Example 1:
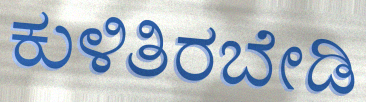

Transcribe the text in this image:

ಕುಳಿತಿರಬೇಡಿ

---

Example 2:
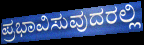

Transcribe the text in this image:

ಪ್ರಭಾವಿಸುವುದರಲ್ಲಿ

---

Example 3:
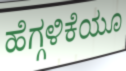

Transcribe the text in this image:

ಹೆಗ್ಗಳಿಕೆಯೂ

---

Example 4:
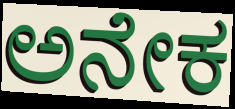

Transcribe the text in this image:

ಅನೇಕ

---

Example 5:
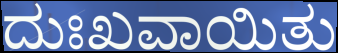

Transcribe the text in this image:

ದುಃಖವಾಯಿತು